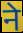
ने